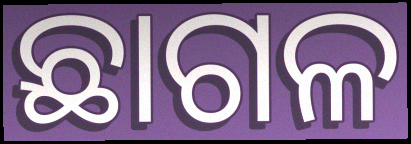
ଛାଗଳ